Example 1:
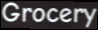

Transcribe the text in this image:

Grocery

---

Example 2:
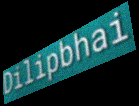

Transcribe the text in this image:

Dilipbhai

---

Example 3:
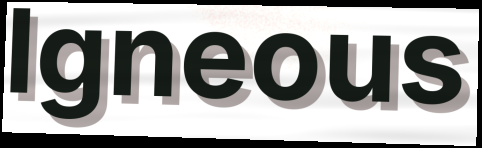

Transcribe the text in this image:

Igneous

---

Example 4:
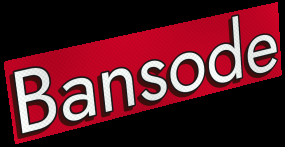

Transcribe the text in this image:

Bansode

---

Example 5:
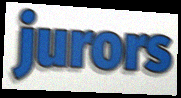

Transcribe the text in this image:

jurors